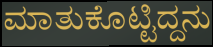
ಮಾತುಕೊಟ್ಟಿದ್ದನು